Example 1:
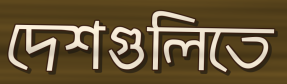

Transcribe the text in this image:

দেশগুলিতে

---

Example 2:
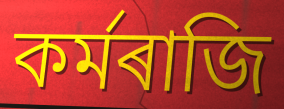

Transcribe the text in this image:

কৰ্মৰাজি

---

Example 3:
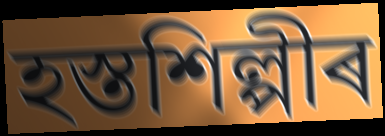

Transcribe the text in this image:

হস্তশিল্পীৰ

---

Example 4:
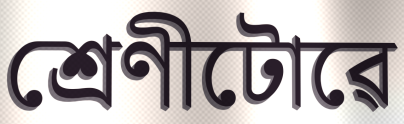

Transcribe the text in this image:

শ্ৰেণীটোৱে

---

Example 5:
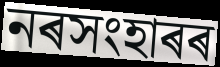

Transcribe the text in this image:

নৰসংহাৰৰ